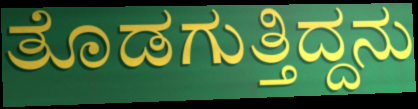
ತೊಡಗುತ್ತಿದ್ದನು